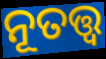
ନୂତତ୍ତ୍ଵ